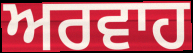
ਅਰਵਾਹ